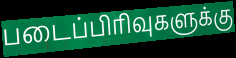
படைப்பிரிவுகளுக்கு